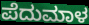
ಪೆದುಮಾಳ